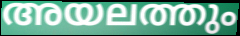
അയലത്തും